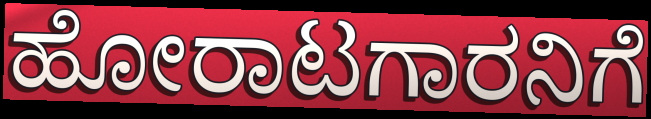
ಹೋರಾಟಗಾರನಿಗೆ